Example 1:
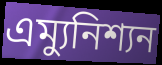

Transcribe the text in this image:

এম্যুনিশ্যন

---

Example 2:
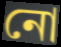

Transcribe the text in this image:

নো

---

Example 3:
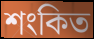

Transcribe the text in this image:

শংকিত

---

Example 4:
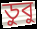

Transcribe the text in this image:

ডুবু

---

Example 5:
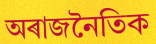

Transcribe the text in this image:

অৰাজনৈতিক